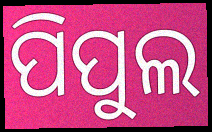
ପିପୁଲ